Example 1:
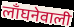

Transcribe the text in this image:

लाँघनेवाली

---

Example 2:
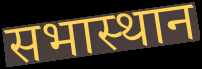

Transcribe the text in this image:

सभास्थान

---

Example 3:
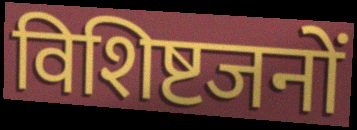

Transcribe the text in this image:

विशिष्टजनों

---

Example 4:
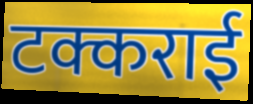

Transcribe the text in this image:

टक्कराई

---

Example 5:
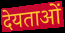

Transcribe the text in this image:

देयताओं